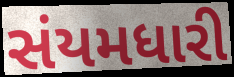
સંયમધારી